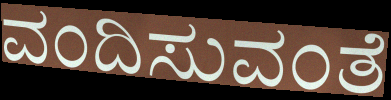
ವಂದಿಸುವಂತೆ